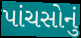
પાંચસોનું